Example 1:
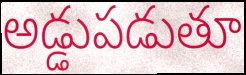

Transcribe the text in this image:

అడ్డుపడుతూ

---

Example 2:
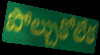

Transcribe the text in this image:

పోల్చుకోలేక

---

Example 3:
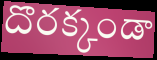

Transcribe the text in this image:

దొరక్కండా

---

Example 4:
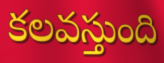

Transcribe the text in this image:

కలవస్తుంది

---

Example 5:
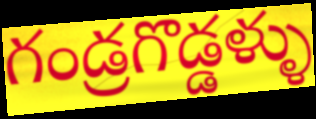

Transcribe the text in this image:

గండ్రగొడ్డళ్ళు